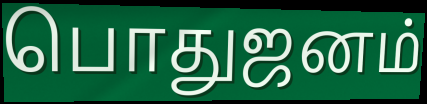
பொதுஜனம்